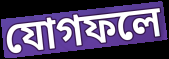
যোগফলে